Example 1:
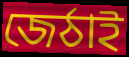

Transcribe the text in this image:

জেঠাই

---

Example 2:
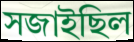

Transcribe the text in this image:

সজাইছিল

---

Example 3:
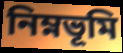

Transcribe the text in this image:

নিম্নভূমি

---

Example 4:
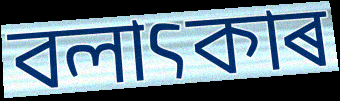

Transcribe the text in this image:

বলাৎকাৰ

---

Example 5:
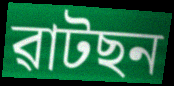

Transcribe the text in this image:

ৱাটছন